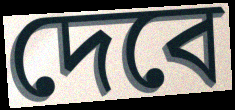
দেবে